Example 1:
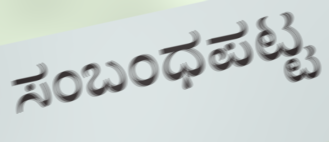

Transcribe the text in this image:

ಸಂಬಂಧಪಟ್ಟ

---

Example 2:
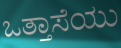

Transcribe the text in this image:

ಒತ್ತಾಸೆಯು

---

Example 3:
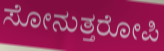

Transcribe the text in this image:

ಸೋನುತ್ತರೋಪಿ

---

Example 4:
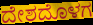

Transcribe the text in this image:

ದೇಶದೊಳಗ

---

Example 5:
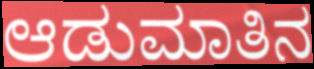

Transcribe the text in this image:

ಆಡುಮಾತಿನ